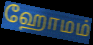
ஹோமம்